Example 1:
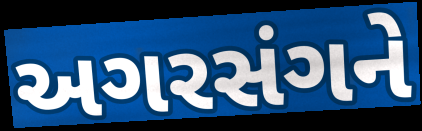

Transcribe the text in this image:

અગરસંગને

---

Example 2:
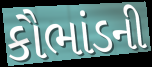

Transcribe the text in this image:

કૌભાંડની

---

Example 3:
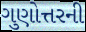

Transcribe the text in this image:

ગુણોત્તરની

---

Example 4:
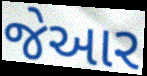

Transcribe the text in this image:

જેઆર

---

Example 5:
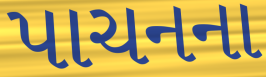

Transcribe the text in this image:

પાચનના